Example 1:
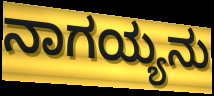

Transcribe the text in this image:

ನಾಗಯ್ಯನು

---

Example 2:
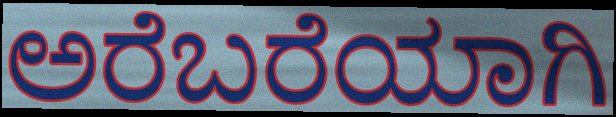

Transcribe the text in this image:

ಅರೆಬರೆಯಾಗಿ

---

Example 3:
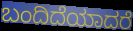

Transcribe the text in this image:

ಬಂದಿದೆಯಾದರೆ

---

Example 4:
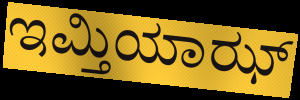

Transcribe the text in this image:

ಇಮ್ತಿಯಾಝ್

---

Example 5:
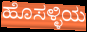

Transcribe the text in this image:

ಹೊಸಳ್ಳಿಯ